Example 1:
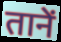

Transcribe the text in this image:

तानें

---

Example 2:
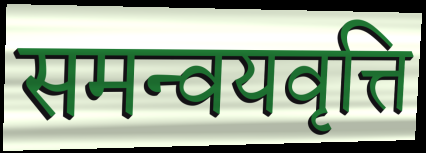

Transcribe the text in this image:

समन्वयवृत्ति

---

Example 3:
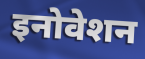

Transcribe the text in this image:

इनोवेशन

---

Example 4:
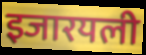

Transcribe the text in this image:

इजारयली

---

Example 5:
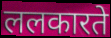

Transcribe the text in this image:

ललकारते